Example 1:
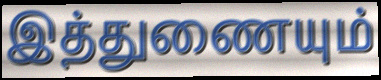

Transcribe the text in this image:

இத்துணையும்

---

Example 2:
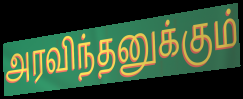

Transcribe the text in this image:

அரவிந்தனுக்கும்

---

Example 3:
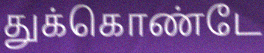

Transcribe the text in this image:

துக்கொண்டே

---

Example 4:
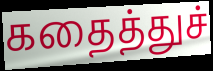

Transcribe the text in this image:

கதைத்துச்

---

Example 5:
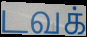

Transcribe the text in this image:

டவக்